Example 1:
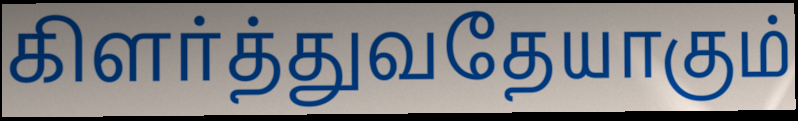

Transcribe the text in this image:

கிளர்த்துவதேயாகும்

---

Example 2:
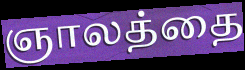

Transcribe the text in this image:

ஞாலத்தை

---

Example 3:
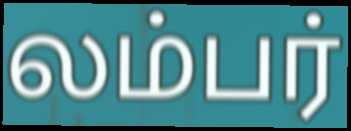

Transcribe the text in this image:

லம்பர்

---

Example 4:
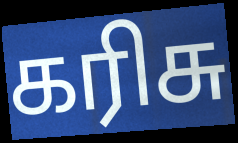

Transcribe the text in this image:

கரிசு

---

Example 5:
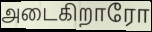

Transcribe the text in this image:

அடைகிறாரோ